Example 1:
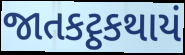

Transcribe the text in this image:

જાતકટ્ઠકથાયં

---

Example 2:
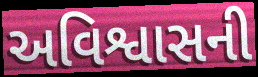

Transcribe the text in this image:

અવિશ્વાસની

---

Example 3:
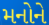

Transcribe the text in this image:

મનોને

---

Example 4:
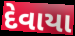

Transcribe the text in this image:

દેવાયા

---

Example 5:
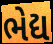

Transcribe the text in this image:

ભેદ્ય